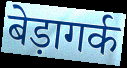
बेड़ागर्क